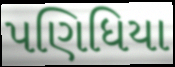
પણિધિયા